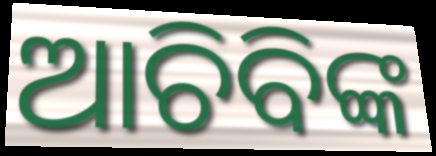
ଆଚିବିଙ୍କ